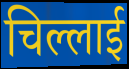
चिल्लाई